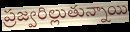
ప్రజ్వరిల్లుతున్నాయి